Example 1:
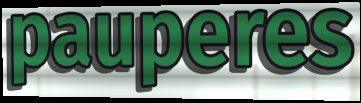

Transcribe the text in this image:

pauperes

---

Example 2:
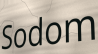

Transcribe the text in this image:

Sodom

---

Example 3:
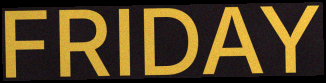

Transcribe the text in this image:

FRIDAY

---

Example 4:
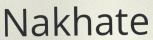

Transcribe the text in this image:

Nakhate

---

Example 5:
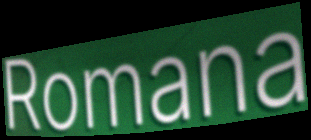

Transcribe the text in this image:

Romana